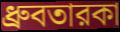
ধ্রুবতারকা